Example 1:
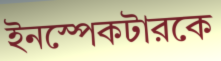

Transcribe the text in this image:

ইনস্পেকটারকে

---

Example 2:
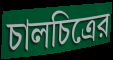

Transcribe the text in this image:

চালচিত্রের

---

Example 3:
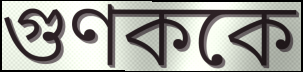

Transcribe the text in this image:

গুণককে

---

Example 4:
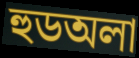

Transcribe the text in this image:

হুডঅলা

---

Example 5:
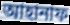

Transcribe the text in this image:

আহানাফ